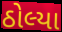
ઠોલ્યા